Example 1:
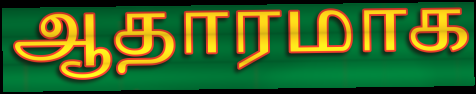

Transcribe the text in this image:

ஆதாரமாக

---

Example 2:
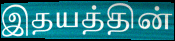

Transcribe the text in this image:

இதயத்தின்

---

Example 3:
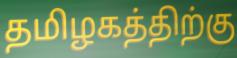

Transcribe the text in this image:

தமிழகத்திற்கு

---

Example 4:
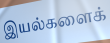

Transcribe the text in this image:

இயல்களைக்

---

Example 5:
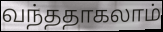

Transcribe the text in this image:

வந்ததாகலாம்